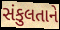
સંકુલતાને